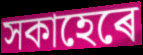
সকাহেৰে